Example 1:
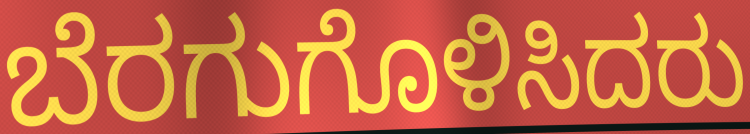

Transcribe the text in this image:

ಬೆರಗುಗೊಳಿಸಿದರು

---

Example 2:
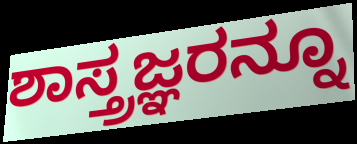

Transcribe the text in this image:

ಶಾಸ್ತ್ರಜ್ಞರನ್ನೂ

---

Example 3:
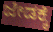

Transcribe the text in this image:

ಜೇಡಕ್ಕೆ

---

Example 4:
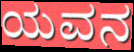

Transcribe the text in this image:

ಯವನ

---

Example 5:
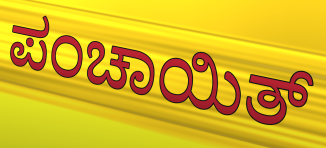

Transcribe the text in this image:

ಪಂಚಾಯಿತ್